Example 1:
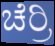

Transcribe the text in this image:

ಚೆರ‍್ರಿ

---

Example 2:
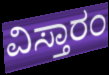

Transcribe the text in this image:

ವಿಸ್ತಾರಂ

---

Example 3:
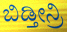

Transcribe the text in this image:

ಬಿಡ್ತೀನ್ರಿ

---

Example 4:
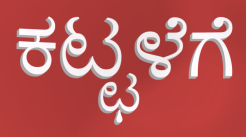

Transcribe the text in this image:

ಕಟ್ಟಳೆಗೆ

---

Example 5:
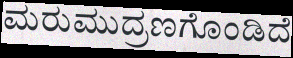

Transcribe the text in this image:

ಮರುಮುದ್ರಣಗೊಂಡಿದೆ